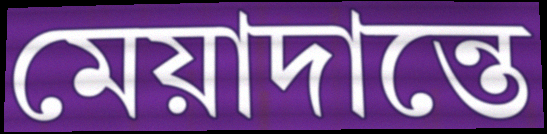
মেয়াদান্তে